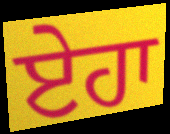
ਏਹਾ